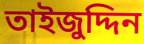
তাইজুদ্দিন